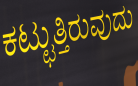
ಕಟ್ಟುತ್ತಿರುವುದು